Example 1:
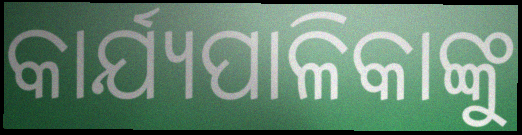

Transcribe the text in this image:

କାର୍ଯ୍ୟପାଳିକାଙ୍କୁ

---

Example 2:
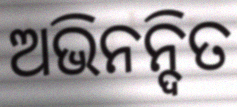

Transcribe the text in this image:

ଅଭିନନ୍ଦିତ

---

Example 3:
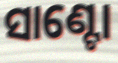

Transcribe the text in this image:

ସାଣ୍ଟୋ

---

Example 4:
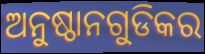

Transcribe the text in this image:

ଅନୁଷ୍ଠାନଗୁଡିକର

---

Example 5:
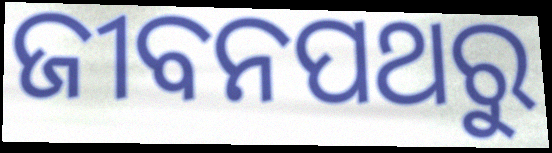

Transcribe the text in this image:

ଜୀବନପଥରୁ